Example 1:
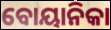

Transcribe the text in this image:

ବୋୟାନିକା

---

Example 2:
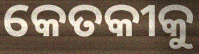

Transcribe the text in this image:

କେତକୀକୁ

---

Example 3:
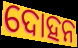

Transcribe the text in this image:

ଦୋହନ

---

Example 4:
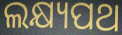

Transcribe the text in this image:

ଲକ୍ଷ୍ୟପଥ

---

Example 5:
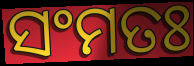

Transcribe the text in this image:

ସଂମତଃ